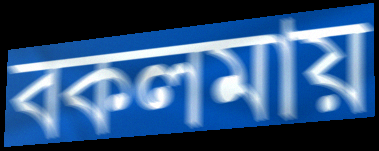
বকলমায়